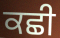
ਕਛੀ